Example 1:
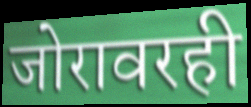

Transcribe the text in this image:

जोरावरही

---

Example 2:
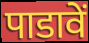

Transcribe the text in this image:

पाडावें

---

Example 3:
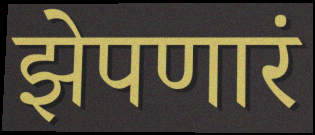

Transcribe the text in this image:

झेपणारं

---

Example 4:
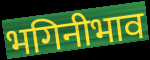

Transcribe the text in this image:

भगिनीभाव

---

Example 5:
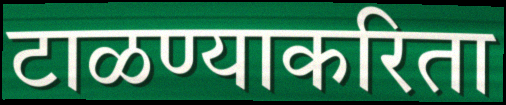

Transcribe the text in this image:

टाळण्याकरिता